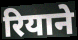
रियाने